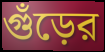
গুঁড়ের